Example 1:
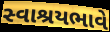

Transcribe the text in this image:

સ્વાશ્રયભાવે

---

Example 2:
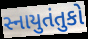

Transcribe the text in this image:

સ્નાયુતંતુકો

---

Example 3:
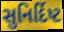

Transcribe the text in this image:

સુનિર્દિષ્ટ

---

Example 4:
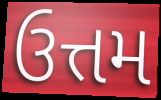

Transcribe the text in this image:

ઉત્તમ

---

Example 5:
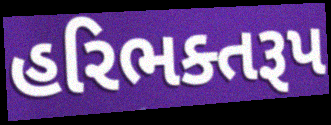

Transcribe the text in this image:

હરિભક્તરૂપ